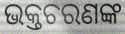
ଭକ୍ତଚରଣଙ୍କ